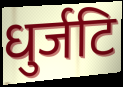
धुर्जटि